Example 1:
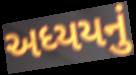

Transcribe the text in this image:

અધ્યયનું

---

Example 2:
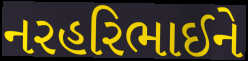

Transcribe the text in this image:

નરહરિભાઈને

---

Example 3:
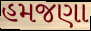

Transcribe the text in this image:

હમજણા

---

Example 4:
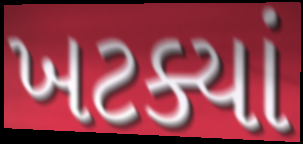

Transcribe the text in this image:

ખટક્યાં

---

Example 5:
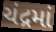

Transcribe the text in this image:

ચંદ્રમાં